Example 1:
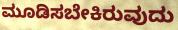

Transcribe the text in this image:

ಮೂಡಿಸಬೇಕಿರುವುದು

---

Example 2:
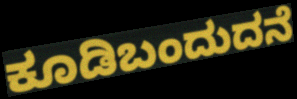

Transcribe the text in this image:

ಕೂಡಿಬಂದುದನೆ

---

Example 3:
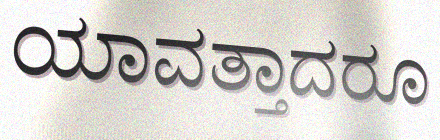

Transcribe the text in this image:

ಯಾವತ್ತಾದರೂ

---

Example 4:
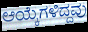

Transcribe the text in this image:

ಆಯ್ಕೆಗಳಿದ್ದವು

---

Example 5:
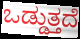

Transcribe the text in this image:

ಒಡ್ಡುತ್ತದೆ